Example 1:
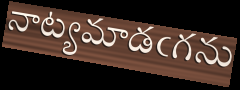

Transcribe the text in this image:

నాట్యమాడఁగను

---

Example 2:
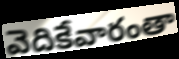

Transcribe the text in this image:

వెదికేవారంతా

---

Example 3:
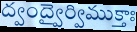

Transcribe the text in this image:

ద్వంద్వైర్విముక్తాః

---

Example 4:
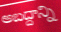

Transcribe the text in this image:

అబద్దాన్ని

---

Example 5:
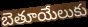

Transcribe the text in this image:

బెతూయేలుకు